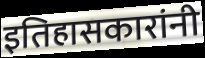
इतिहासकारांनी